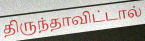
திருந்தாவிட்டால்